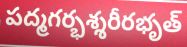
పద్మగర్భశ్శరీరభృత్